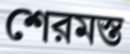
শেরমস্ত